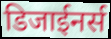
डिजाईनर्स